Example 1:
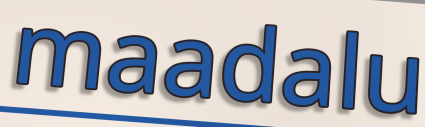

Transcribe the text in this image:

maadalu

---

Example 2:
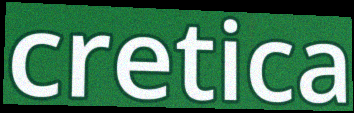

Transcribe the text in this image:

cretica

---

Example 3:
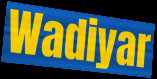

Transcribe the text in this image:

Wadiyar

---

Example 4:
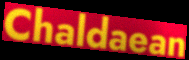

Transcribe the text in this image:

Chaldaean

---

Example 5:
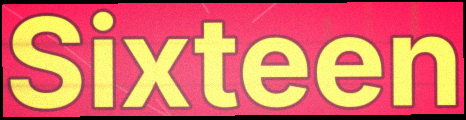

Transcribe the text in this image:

Sixteen